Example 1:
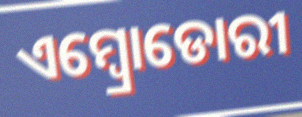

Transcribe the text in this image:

ଏମ୍ବ୍ରୋଡୋରୀ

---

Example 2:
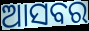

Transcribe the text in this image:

ଆସବର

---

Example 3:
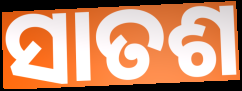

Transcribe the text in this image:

ସାତଶ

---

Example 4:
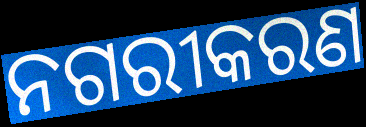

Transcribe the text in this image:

ନଗରୀକରଣ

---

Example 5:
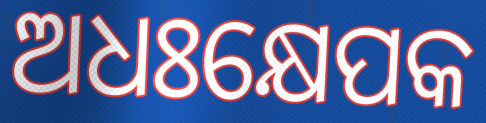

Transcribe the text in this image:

ଅଧଃକ୍ଷେପକ